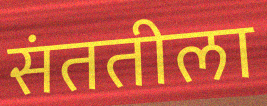
संततीला